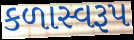
કળાસ્વરૂપ